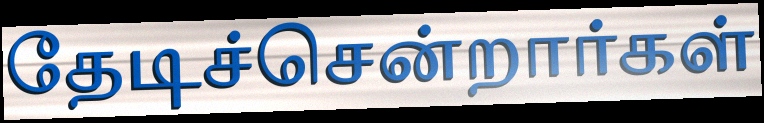
தேடிச்சென்றார்கள்